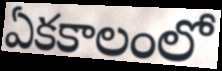
ఏకకాలంలో